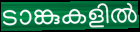
ടാങ്കുകളിൽ